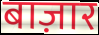
बाज़ार